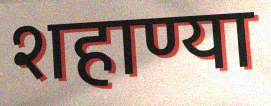
शहाण्या